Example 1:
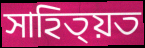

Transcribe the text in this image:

সাহিত্য়ত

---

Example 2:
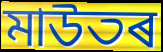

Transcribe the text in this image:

মাউতৰ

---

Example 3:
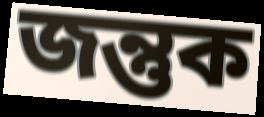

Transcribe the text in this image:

জন্তুক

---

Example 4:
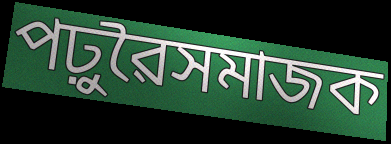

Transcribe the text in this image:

পঢ়ুৱৈসমাজক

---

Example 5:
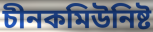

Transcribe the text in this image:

চীনকমিউনিষ্ট